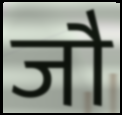
जौ